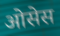
ओसेस